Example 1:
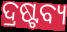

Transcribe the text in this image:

ଦ୍ରଷ୍ଟବ୍ୟ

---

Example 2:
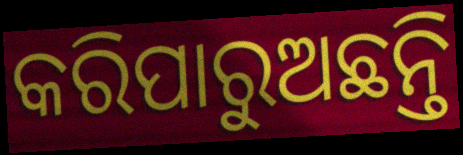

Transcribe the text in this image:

କରିପାରୁଅଛନ୍ତି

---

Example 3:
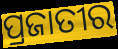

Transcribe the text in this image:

ପ୍ରଜାତୀର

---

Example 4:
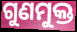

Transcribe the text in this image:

ଗୁଣମୁକ୍ତ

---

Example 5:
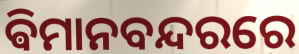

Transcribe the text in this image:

ଵିମାନବନ୍ଦରରେ